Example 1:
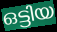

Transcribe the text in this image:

ഒട്ടിയ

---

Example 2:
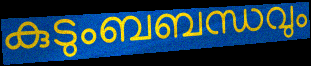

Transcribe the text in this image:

കുടുംബബന്ധവും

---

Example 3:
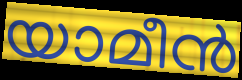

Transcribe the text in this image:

യാമീൻ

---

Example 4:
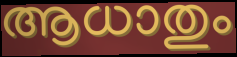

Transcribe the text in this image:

ആധാതും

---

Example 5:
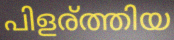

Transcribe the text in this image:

പിളര്ത്തിയ